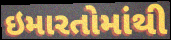
ઇમારતોમાંથી